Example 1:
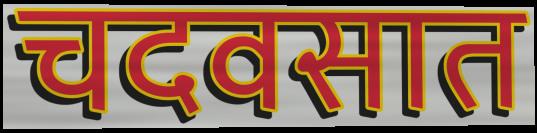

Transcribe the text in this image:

चदवसात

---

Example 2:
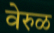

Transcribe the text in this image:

वेरुळ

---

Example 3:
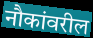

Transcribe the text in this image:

नौकांवरील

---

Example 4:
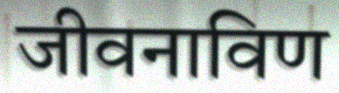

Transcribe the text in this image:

जीवनाविण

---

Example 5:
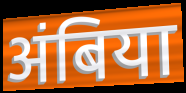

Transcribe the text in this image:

अंबिया